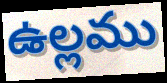
ఉల్లము